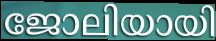
ജോലിയായി